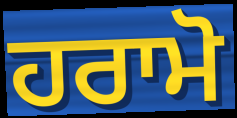
ਹਰਾਮੋ